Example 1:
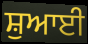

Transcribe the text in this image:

ਸ਼ੁਆਈ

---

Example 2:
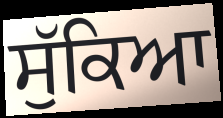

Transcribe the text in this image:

ਸੁੱਕਿਆ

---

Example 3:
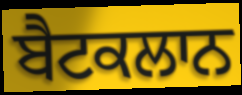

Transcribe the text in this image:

ਬੈਟਕਲਾਨ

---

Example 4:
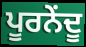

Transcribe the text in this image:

ਪੂਰਨੇਂਦੂ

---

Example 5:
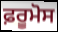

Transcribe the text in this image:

ਫ਼ਰੂਮੋਸ